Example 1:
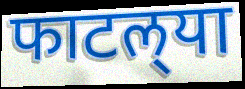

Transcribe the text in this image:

फाटल्या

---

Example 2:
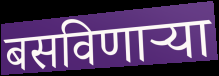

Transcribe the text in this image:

बसविणार्‍या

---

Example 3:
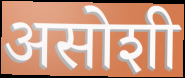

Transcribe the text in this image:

असोशी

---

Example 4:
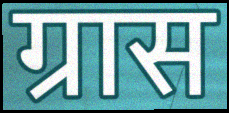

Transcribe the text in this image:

ग्रास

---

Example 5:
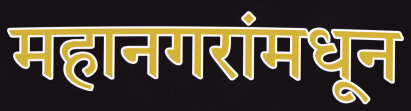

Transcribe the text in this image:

महानगरांमधून